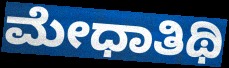
ಮೇಧಾತಿಥಿ